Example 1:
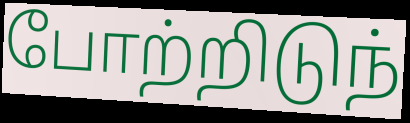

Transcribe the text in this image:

போற்றிடுந்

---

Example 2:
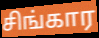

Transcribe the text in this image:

சிங்கார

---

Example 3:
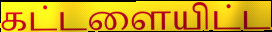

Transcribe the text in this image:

கட்டளையிட்ட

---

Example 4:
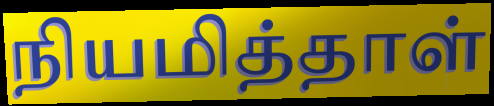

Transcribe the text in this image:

நியமித்தாள்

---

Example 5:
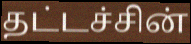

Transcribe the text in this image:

தட்டச்சின்